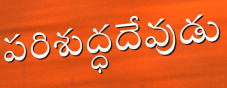
పరిశుద్ధదేవుడు